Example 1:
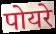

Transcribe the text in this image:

पोयरे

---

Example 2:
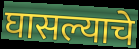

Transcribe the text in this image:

घासल्याचे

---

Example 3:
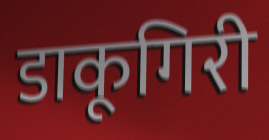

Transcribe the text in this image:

डाकूगिरी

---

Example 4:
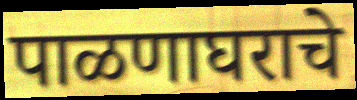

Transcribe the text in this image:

पाळणाघराचे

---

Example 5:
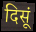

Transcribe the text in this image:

दिसूं